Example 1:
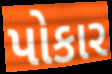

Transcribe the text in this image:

પોકાર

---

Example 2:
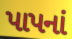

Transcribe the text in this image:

પાપનાં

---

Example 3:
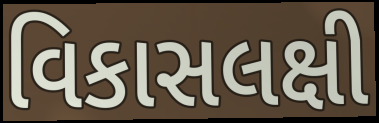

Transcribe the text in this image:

વિકાસલક્ષી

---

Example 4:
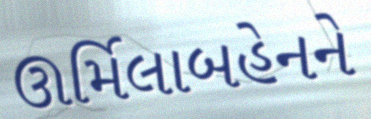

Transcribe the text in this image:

ઊર્મિલાબહેનને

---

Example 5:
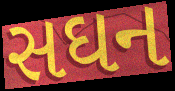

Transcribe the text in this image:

સઘન